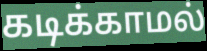
கடிக்காமல்